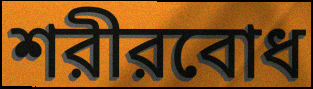
শরীরবোধ